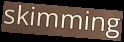
skimming